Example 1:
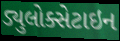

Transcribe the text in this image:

ડ્યુલોક્સેટાઇન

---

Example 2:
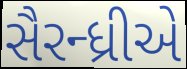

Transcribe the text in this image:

સૈરન્ધ્રીએ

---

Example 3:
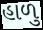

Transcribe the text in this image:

હાળુ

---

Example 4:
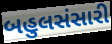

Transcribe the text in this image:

બહુલસંસારી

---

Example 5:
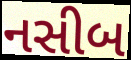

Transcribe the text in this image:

નસીબ